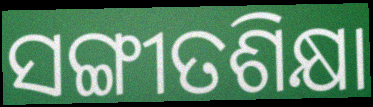
ସଙ୍ଗୀତଶିକ୍ଷା